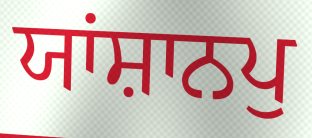
ਯਾਂਸ਼ਾਨਪੁ